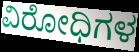
ವಿರೋಧಿಗಳ